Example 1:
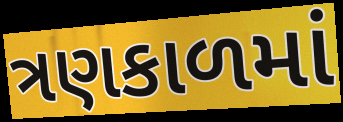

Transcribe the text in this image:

ત્રણકાળમાં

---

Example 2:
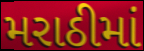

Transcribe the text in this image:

મરાઠીમાં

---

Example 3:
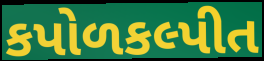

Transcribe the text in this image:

કપોળકલ્પીત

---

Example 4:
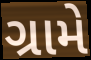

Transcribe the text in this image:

ગ્રામે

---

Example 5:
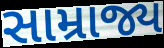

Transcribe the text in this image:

સામ્રાજ્ય